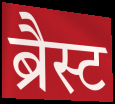
ब्रैस्ट